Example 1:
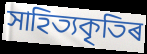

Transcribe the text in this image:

সাহিত্যকৃতিৰ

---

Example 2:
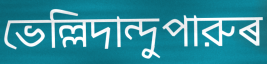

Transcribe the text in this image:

ভেল্লিদান্দুপাৰুৰ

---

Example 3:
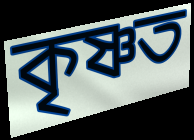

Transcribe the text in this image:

কৃষ্ণত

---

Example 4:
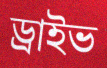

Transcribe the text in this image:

ড্ৰাইভ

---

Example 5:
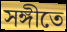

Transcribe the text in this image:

সঙ্গীতে